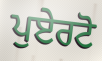
ਪੁਏਰਟੋ